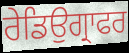
ਰੇਡਿਉਗ੍ਰਾਫਰ